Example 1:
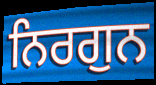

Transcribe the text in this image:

ਨਿਰਗੁਨ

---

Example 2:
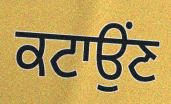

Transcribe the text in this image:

ਕਟਾਉਂਣ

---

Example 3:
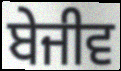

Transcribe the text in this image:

ਬੇਜੀਵ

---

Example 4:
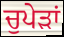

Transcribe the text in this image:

ਚੁਪੇੜਾਂ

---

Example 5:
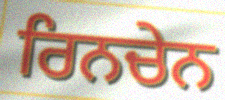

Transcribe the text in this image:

ਰਿਨਚੇਨ